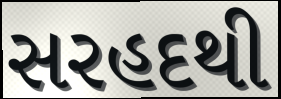
સરહદથી